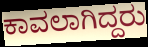
ಕಾವಲಾಗಿದ್ದರು